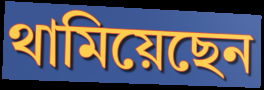
থামিয়েছেন